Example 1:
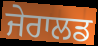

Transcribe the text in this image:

ਜੇਰਾਲਡ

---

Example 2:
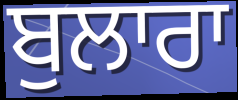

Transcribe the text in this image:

ਬੁਲਾਰਾ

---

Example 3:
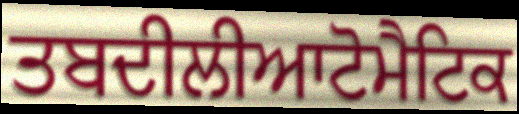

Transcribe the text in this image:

ਤਬਦੀਲੀਆਟੋਮੈਟਿਕ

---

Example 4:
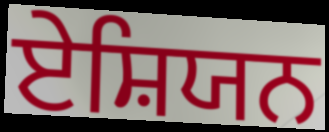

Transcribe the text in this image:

ਏਸ਼ਿਯਨ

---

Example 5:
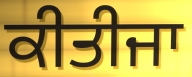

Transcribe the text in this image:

ਕੀਤੀਜਾ